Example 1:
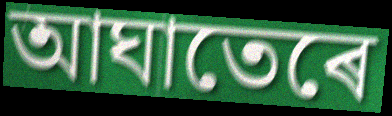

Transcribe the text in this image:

আঘাতেৰে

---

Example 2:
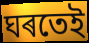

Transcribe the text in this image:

ঘৰতেই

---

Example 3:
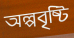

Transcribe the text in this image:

অল্পবৃষ্টি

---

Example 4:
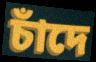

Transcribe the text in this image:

চাঁদে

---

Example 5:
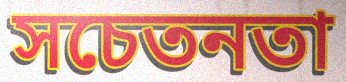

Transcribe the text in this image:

সচেতনতা